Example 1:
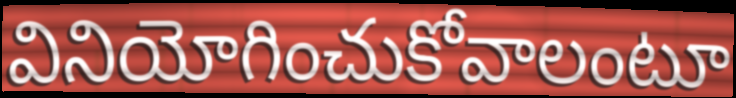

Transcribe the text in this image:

వినియోగించుకోవాలంటూ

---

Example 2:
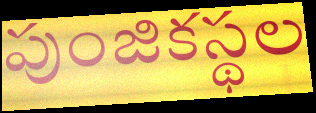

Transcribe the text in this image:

పుంజికస్థల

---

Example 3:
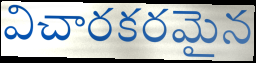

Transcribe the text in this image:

విచారకరమైన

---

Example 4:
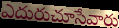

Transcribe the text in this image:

ఎదురుచూసేవారు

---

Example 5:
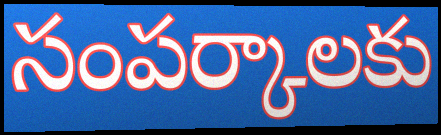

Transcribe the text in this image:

సంపర్కాలకు